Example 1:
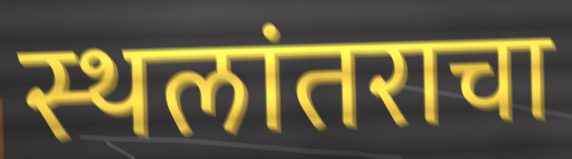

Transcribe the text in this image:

स्थलांतराचा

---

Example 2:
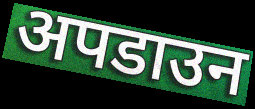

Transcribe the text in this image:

अपडाउन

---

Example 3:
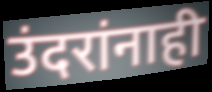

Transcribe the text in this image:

उंदरांनाही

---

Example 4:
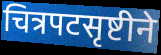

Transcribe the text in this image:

चित्रपटसृष्टीने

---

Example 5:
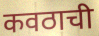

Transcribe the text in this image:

कवठाची